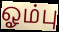
ஓம்பு